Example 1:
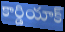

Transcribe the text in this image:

కార్డియాక్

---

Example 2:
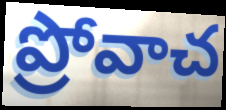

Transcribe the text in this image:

ప్రోవాచ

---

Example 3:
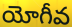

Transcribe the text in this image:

యోగీవ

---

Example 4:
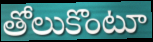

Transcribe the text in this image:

తోలుకొంటూ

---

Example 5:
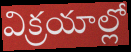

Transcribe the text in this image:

విక్రయాల్లో